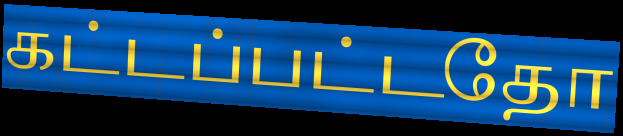
கட்டப்பட்டதோ